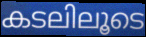
കടലിലൂടെ